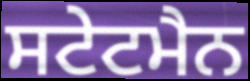
ਸਟੇਟਮੈਨ